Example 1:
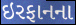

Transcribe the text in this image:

ઇરફાનના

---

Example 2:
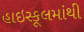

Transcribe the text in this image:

હાઇસ્કૂલમાંથી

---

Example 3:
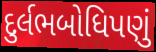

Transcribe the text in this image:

દુર્લભબોધિપણું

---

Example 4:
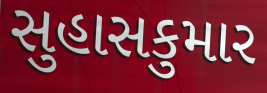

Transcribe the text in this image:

સુહાસકુમાર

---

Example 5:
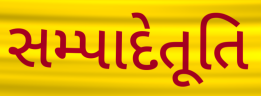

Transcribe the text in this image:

સમ્પાદેતૂતિ